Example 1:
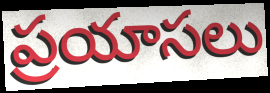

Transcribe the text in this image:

ప్రయాసలు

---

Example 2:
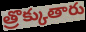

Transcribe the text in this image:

త్రొక్కుతారు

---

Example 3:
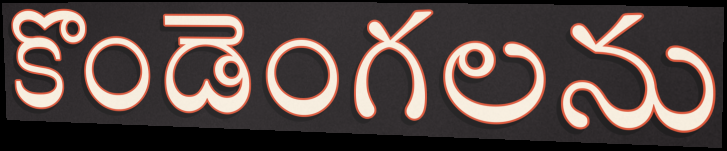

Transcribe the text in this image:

కొండెంగలను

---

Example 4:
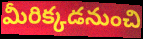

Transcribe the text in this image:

మీరిక్కడనుంచి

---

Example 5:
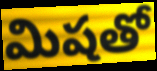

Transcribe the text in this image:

మిషతో